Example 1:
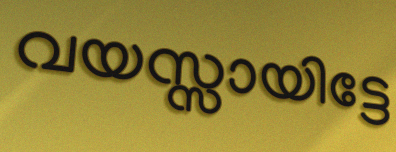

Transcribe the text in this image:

വയസ്സായിട്ടേ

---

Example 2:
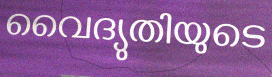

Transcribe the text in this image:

വൈദ്യുതിയുടെ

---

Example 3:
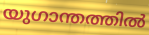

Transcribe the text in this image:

യുഗാന്തത്തിൽ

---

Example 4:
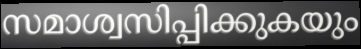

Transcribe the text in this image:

സമാശ്വസിപ്പിക്കുകയും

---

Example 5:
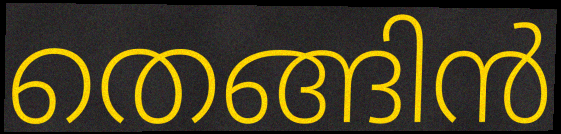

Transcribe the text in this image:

തെങ്ങിൻ